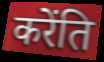
करेंति